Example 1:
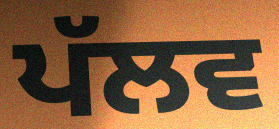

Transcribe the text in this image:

ਪੱਲਵ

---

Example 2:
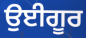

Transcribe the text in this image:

ਉਈਗੂਰ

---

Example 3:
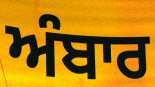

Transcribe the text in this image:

ਅੰਬਾਰ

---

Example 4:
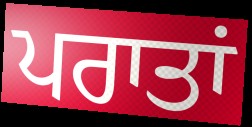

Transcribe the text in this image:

ਪਰਾਤਾਂ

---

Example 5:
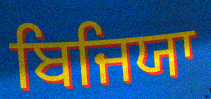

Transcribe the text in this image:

ਬਿਜਿਯਾ